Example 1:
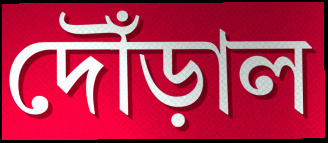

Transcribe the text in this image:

দৌঁড়াল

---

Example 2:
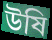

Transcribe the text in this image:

উষি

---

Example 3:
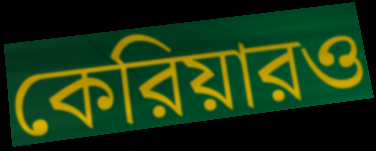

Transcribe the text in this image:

কেরিয়ারও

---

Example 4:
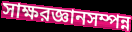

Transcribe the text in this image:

সাক্ষরজ্ঞানসম্পন্ন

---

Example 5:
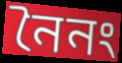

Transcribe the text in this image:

নৈনং